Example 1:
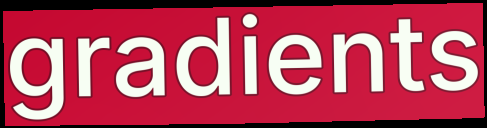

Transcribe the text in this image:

gradients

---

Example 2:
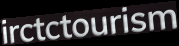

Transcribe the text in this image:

irctctourism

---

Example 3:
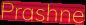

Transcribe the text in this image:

Prashne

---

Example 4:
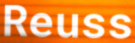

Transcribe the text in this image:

Reuss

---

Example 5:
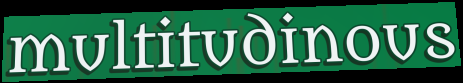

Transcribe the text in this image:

multitudinous